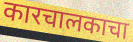
कारचालकाचा